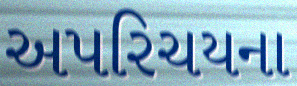
અપરિચયના